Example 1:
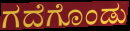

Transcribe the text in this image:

ಗದೆಗೊಂಡು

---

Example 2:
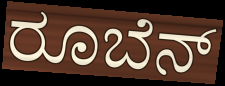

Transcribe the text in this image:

ರೂಬೆನ್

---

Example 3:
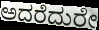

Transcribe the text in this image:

ಅದರೆದುರೇ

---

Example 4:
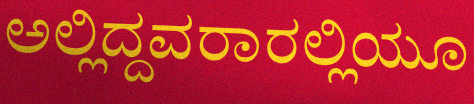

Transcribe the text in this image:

ಅಲ್ಲಿದ್ದವರಾರಲ್ಲಿಯೂ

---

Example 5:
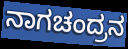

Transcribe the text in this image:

ನಾಗಚಂದ್ರನ